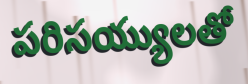
పరిసయ్యులతో